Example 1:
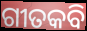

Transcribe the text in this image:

ଗୀତକବି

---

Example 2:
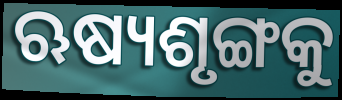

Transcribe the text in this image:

ଋଷ୍ୟଶୃଙ୍ଗକୁ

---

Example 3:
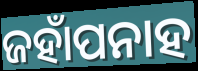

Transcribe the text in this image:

ଜହାଁପନାହ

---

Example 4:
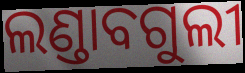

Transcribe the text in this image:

ଲଣ୍ଡାବଗୁଲୀ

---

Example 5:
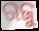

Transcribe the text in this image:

ଋଜୁ